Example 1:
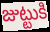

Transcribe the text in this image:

జుట్టుకి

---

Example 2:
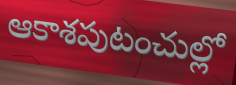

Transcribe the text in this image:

ఆకాశపుటంచుల్లో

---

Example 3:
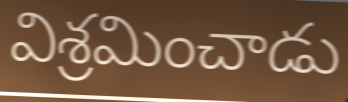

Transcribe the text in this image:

విశ్రమించాడు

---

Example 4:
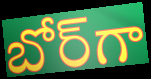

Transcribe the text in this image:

బోర్‌గా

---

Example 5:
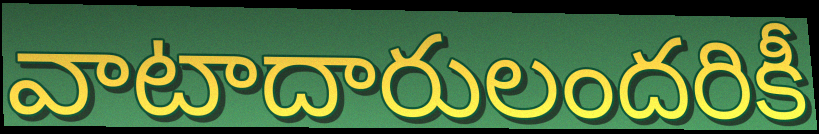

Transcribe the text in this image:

వాటాదారులందరికీ